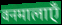
वनमालाएँ